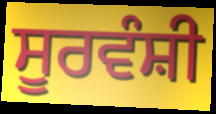
ਸੂਰਵੰਸ਼ੀ